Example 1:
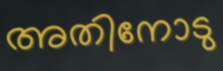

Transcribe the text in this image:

അതിനോടു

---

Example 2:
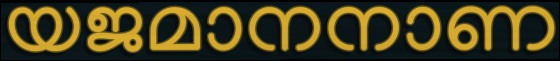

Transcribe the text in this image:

യജമാനനാണ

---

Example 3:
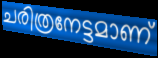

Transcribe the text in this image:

ചരിത്രനേട്ടമാണ്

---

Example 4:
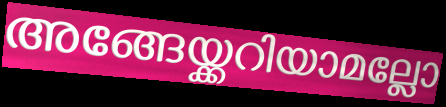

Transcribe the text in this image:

അങ്ങേയ്ക്കറിയാമല്ലോ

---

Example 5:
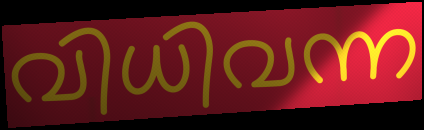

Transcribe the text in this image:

വിധിവന്ന